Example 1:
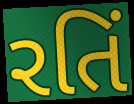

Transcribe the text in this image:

રતિં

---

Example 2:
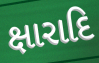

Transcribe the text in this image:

ક્ષારાદિ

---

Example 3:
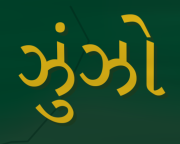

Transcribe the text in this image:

ઝુંઝો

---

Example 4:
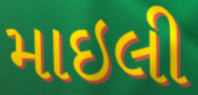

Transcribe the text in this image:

માઇલી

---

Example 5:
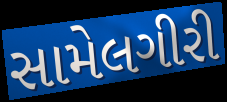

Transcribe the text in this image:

સામેલગીરી